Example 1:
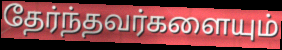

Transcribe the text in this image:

தேர்ந்தவர்களையும்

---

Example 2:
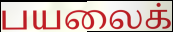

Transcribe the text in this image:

பயலைக்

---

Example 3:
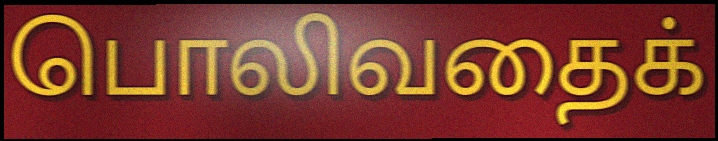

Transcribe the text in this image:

பொலிவதைக்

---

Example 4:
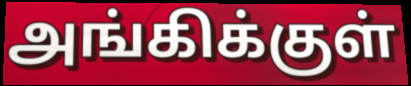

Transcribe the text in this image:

அங்கிக்குள்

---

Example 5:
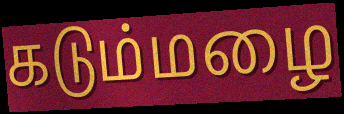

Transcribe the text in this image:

கடும்மழை